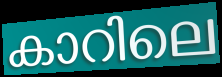
കാറിലെ